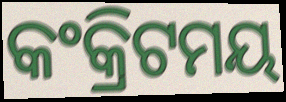
କଂକ୍ରିଟମୟ